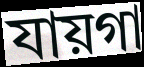
যায়গা